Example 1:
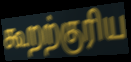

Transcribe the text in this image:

கூறற்குரிய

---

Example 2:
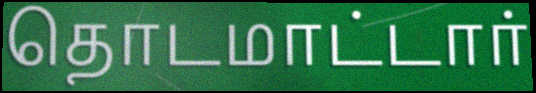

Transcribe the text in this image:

தொடமாட்டார்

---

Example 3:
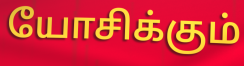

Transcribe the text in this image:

யோசிக்கும்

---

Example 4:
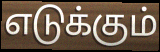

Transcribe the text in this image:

எடுக்கும்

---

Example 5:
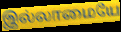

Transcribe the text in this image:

இல்லாமையே